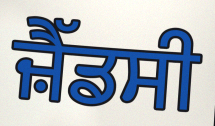
ਜ਼ੈੱਡਸੀ